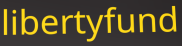
libertyfund